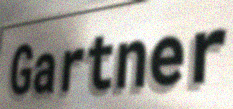
Gartner